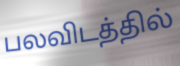
பலவிடத்தில்